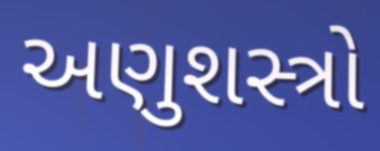
અણુશસ્ત્રો